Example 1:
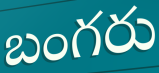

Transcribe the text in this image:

బంగరు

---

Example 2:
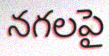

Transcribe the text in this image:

నగలపై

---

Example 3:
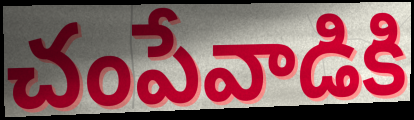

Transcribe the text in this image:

చంపేవాడికి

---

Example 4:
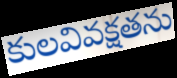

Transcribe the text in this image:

కులవివక్షతను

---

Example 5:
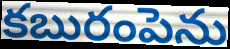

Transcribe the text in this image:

కబురంపెను